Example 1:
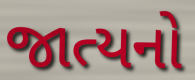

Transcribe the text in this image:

જાત્યનો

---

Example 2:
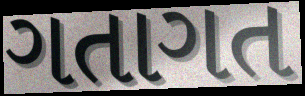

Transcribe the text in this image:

ગતાગત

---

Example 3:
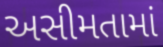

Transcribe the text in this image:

અસીમતામાં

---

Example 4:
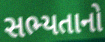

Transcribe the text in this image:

સભ્યતાનો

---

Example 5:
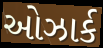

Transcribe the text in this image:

ઓઝાર્ક